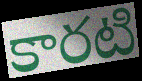
కారటి